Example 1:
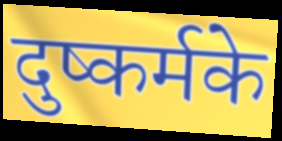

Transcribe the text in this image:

दुष्कर्मके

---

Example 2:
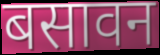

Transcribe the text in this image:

बसावन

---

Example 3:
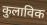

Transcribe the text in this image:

कुलाविक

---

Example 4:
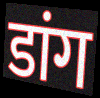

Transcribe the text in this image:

डांग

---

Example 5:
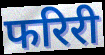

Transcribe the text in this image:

फरिरी